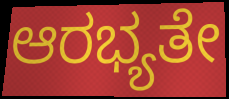
ಆರಭ್ಯತೇ